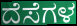
ದೆಸೆಗಳ